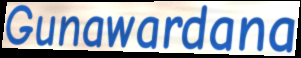
Gunawardana